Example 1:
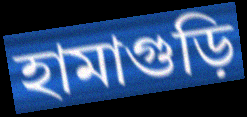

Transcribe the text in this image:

হামাগুড়ি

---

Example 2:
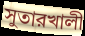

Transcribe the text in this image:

সুতারখালী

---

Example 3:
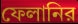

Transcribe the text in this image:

ফেলানির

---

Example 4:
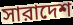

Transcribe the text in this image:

সারাদেশ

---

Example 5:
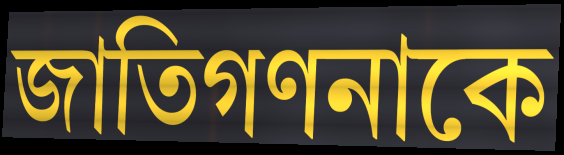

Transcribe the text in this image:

জাতিগণনাকে